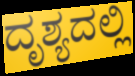
ದೃಶ್ಯದಲ್ಲಿ